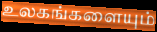
உலகங்களையும்